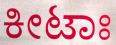
ಕೀಟಾಃ